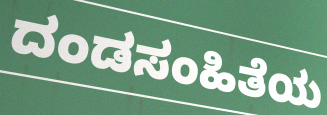
ದಂಡಸಂಹಿತೆಯ